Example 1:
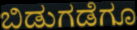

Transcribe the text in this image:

ಬಿಡುಗಡೆಗೂ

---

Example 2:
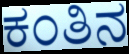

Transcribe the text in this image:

ಕಂತಿನ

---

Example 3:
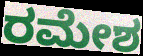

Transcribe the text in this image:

ರಮೇಶ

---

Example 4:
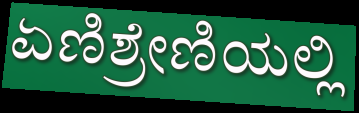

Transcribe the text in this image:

ಏಣಿಶ್ರೇಣಿಯಲ್ಲಿ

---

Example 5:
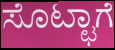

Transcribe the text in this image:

ಸೊಟ್ಟಾಗೆ